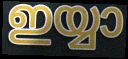
ഇയ്യാ